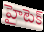
హైటెక్